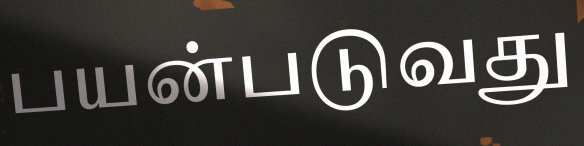
பயன்படுவது